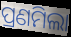
ପ୍ରଣମିଲା